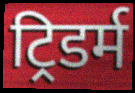
ट्रिडर्म